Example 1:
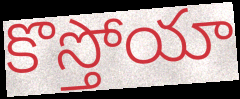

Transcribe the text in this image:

కొస్తోయా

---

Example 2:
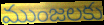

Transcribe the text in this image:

ముంజలకు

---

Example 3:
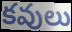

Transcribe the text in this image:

కవులు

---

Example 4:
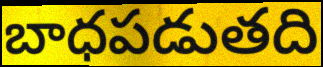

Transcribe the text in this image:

బాధపడుతది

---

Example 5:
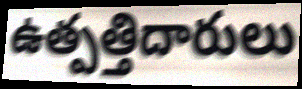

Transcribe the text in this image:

ఉత్పత్తిదారులు